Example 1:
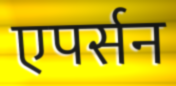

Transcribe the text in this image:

एपर्सन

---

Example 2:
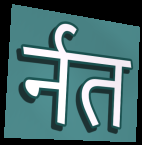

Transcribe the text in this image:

र्नत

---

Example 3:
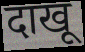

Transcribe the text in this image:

दाखू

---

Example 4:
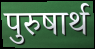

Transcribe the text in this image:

पुरुषार्थ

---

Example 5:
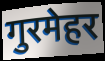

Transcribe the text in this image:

गुरमेहर